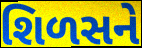
શિળસને